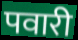
पवारी